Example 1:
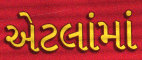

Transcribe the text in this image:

એટલાંમાં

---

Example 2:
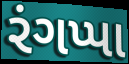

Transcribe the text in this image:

રંગપ્પા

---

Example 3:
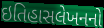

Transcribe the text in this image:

ઇતિહાસલેખનનો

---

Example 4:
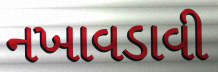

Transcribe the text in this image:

નખાવડાવી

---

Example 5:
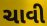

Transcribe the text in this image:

ચાવી